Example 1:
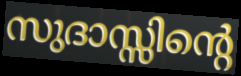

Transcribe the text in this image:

സുദാസ്സിന്റെ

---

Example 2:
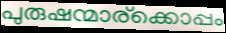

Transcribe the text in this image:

പുരുഷന്മാര്ക്കൊപ്പം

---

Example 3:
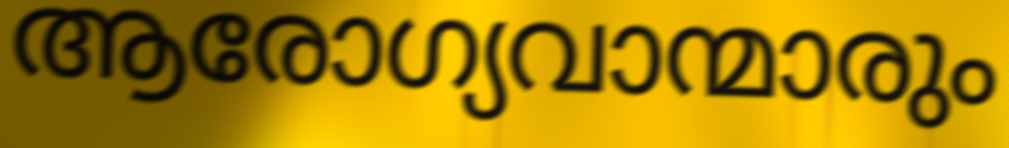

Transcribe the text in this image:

ആരോഗ്യവാന്മാരും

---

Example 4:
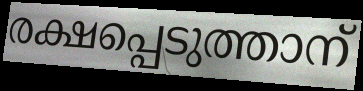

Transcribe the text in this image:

രക്ഷപ്പെടുത്താന്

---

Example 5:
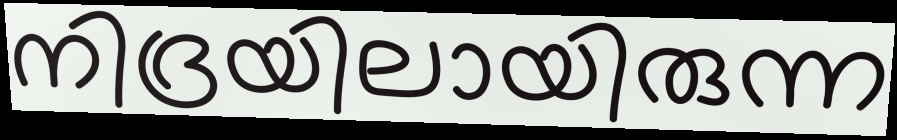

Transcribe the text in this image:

നിദ്രയിലായിരുന്ന